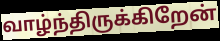
வாழ்ந்திருக்கிறேன்